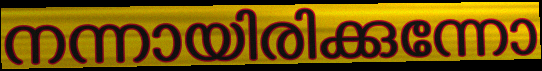
നന്നായിരിക്കുന്നോ